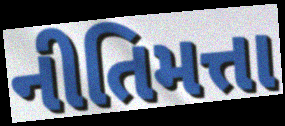
નીતિમત્તા